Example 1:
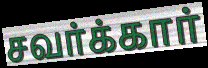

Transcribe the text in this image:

சவர்க்கார்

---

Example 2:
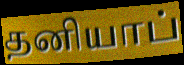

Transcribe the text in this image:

தனியாப்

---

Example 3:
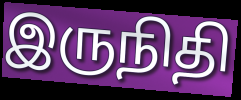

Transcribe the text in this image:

இருநிதி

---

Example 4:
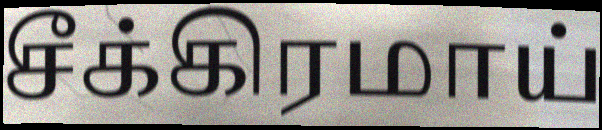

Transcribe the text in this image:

சீக்கிரமாய்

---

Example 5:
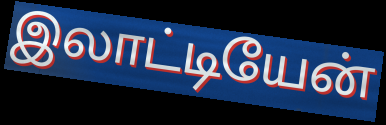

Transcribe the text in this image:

இலாட்டியேன்